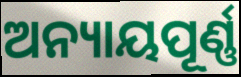
ଅନ୍ୟାୟପୂର୍ଣ୍ଣ